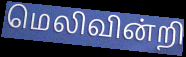
மெலிவின்றி